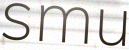
smu